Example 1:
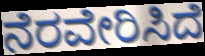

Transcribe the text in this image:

ನೆರವೇರಿಸಿದೆ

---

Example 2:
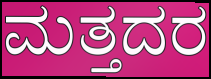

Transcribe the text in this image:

ಮತ್ತದರ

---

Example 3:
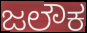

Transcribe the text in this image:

ಜಲೌಕ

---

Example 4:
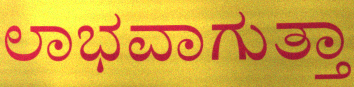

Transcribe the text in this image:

ಲಾಭವಾಗುತ್ತಾ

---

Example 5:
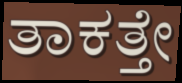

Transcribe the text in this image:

ತಾಕತ್ತೇ